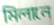
মিলানে